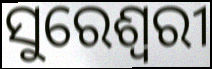
ସୁରେଶ୍ଵରୀ